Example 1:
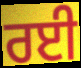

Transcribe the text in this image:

ਰਈ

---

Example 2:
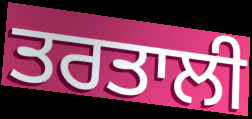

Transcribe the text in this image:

ਤਰਤਾਲੀ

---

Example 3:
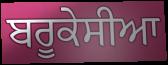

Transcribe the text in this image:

ਬਰੂਕੇਸੀਆ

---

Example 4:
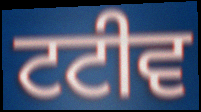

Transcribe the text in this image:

ਟਟੀਵ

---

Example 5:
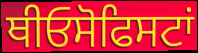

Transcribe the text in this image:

ਥੀਓਸੋਫਿਸਟਾਂ